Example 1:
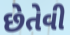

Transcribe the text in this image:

છેતેવી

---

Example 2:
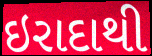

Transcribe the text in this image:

ઇરાદાથી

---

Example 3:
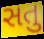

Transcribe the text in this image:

સતુ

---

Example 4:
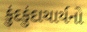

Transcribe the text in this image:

કુંદકુંદાચાર્યનો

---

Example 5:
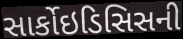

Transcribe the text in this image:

સાર્કોઇડિસિસની